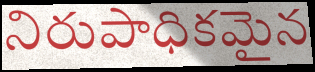
నిరుపాధికమైన